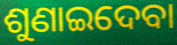
ଶୁଣାଇଦେବା